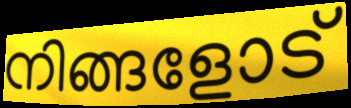
നിങ്ങളോട്